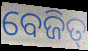
ବେଜିତ୍